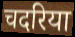
चदरिया